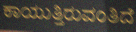
ಕಾಯುತ್ತಿರುವಂತಿದೆ